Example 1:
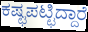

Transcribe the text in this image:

ಕಷ್ಟಪಟ್ಟಿದ್ದಾರೆ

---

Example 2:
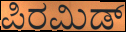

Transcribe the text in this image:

ಪಿರಮಿಡ್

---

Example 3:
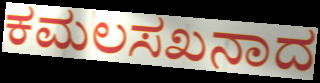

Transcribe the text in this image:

ಕಮಲಸಖನಾದ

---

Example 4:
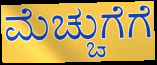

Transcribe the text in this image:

ಮೆಚ್ಚುಗೆಗೆ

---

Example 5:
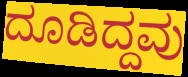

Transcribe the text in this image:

ದೂಡಿದ್ದವು